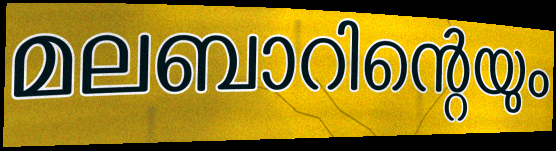
മലബാറിന്റെയും